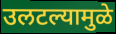
उलटल्यामुळे